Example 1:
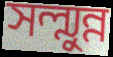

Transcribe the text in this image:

সল্মুন্ন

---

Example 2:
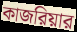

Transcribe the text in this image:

কাজরিয়ার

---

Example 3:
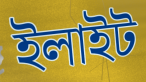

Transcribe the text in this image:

ইলাইট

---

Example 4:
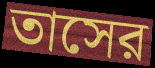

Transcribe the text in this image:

তাসের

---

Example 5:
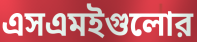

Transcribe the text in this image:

এসএমইগুলোর